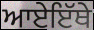
ਆਏਇੱਥੇ